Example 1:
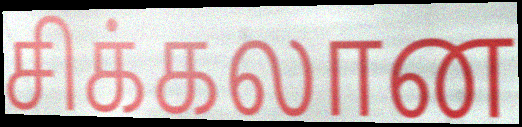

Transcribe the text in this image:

சிக்கலான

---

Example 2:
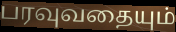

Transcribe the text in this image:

பரவுவதையும்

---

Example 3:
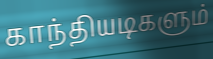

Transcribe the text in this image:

காந்தியடிகளும்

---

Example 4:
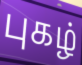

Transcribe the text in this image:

புகழ்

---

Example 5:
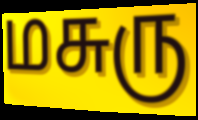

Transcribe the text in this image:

மசுரு